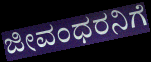
ಜೀವಂಧರನಿಗೆ